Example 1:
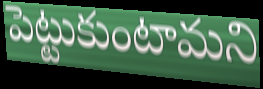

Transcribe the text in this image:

పెట్టుకుంటామని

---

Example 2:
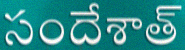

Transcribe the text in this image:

సందేశాత్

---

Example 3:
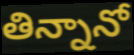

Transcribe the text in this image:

తిన్నానో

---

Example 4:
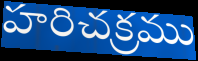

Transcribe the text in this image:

హరిచక్రము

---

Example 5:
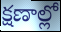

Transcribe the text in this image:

క్షణాల్లో